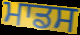
ਮਾਡਸ